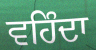
ਵਹਿੰਦਾ